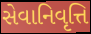
સેવાનિવૃત્તિ